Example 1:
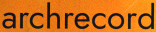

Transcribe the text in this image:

archrecord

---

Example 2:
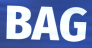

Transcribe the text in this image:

BAG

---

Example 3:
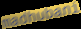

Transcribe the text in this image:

madhubani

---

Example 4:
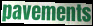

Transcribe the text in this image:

pavements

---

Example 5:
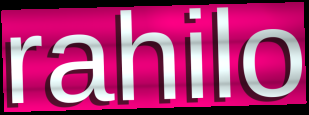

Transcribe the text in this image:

rahilo